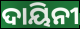
ଦାୟିନୀ